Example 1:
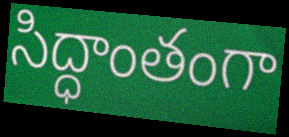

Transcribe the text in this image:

సిద్ధాంతంగా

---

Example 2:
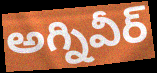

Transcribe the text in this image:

అగ్నివీర్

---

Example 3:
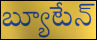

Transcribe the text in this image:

బ్యూటేన్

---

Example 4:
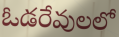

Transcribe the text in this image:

ఓడరేవులలో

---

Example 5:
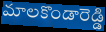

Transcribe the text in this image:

మాలకొండారెడ్డి